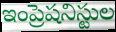
ఇంప్రెషనిస్టుల